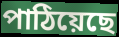
পাঠিয়েছে